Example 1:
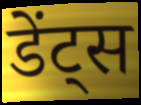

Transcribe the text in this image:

डेंट्स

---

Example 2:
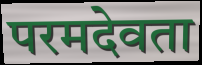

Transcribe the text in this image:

परमदेवता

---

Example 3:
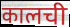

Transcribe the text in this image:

कालची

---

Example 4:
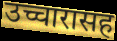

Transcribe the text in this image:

उच्चारासह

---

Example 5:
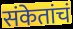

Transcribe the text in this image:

संकेतांचं